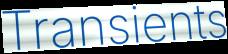
Transients